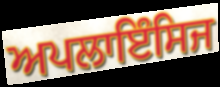
ਅਪਲਾਇੰਸਿਜ